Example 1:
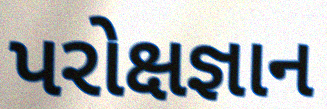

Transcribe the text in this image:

પરોક્ષજ્ઞાન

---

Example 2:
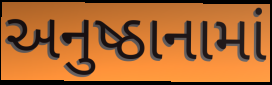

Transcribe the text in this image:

અનુષ્ઠાનામાં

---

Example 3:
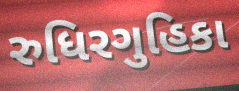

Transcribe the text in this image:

રુધિરગુહિકા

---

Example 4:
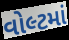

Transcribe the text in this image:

વોલ્ટમાં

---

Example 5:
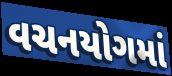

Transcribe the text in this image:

વચનયોગમાં